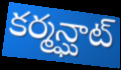
కర్మన్ఘాట్